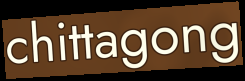
chittagong